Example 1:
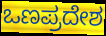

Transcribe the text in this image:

ಒಣಪ್ರದೇಶ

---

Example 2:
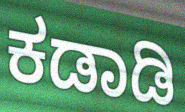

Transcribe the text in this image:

ಕಡಾಡಿ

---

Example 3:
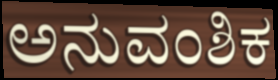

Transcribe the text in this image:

ಅನುವಂಶಿಕ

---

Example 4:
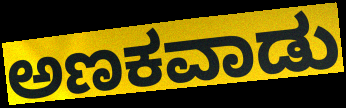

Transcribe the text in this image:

ಅಣಕವಾಡು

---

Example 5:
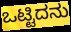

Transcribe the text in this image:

ಒಟ್ಟಿದನು